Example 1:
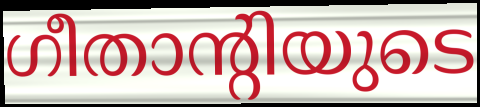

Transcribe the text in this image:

ഗീതാന്റിയുടെ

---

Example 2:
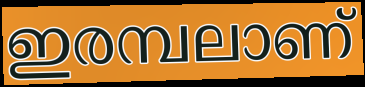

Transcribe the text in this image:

ഇരമ്പലാണ്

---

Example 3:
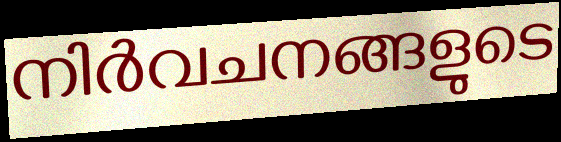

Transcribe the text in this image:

നിർവചനങ്ങളുടെ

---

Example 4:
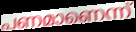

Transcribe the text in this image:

പണമാണെന്ന്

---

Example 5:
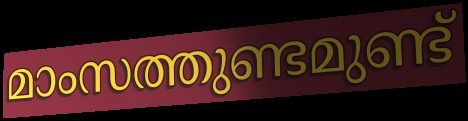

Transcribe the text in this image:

മാംസത്തുണ്ടമുണ്ട്